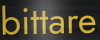
bittare